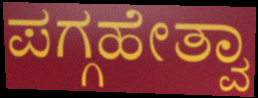
ಪಗ್ಗಹೇತ್ವಾ